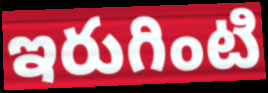
ఇరుగింటి